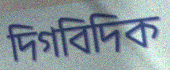
দিগবিদিক